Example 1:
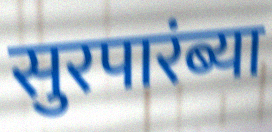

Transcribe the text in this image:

सुरपारंब्या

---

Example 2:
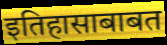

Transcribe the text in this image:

इतिहासाबाबत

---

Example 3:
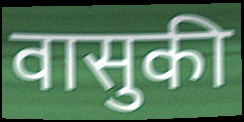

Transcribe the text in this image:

वासुकी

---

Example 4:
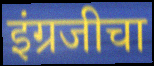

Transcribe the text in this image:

इंग्रजीचा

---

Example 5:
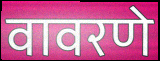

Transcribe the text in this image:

वावरणे